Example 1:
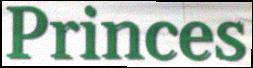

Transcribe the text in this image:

Princes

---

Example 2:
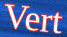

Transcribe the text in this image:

Vert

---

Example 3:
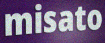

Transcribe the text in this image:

misato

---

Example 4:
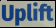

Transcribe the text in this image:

Uplift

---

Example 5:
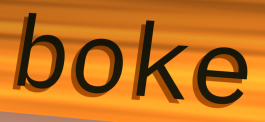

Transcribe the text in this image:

boke